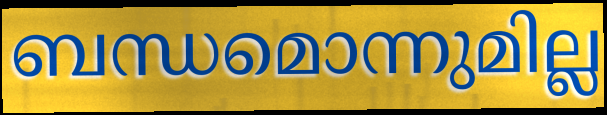
ബന്ധമൊന്നുമില്ല